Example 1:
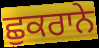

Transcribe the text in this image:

ਛੁਕਰਾਨੇ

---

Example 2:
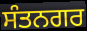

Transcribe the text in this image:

ਸੰਤਨਗਰ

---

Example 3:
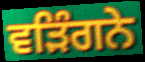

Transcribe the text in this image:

ਵੜਿੰਗਨੇ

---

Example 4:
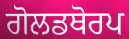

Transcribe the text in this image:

ਗੋਲਡਥੋਰਪ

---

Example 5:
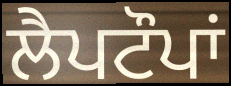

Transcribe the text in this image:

ਲੈਪਟੌਪਾਂ